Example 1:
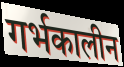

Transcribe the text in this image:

गर्भकालीन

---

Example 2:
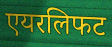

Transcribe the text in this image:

एयरलिफट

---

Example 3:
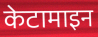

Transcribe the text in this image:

केटामाइन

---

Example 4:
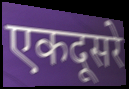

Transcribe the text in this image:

एकदूसरे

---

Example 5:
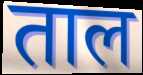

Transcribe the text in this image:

ताल